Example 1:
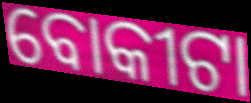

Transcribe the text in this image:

ବୋକୀଟା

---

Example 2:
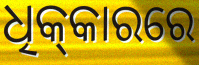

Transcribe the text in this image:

ଧିକ୍‌କାରରେ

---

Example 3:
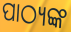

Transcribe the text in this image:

ପାଠ୍ୟଙ୍କ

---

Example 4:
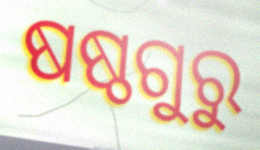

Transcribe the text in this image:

ଷଷ୍ଠଗୁରୁ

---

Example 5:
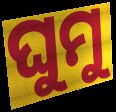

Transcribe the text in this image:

ଘୁମୁ